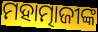
ମହାତ୍ମାଜୀଙ୍କ